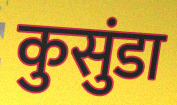
कुसुंडा